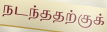
நடந்ததற்குக்